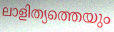
ലാളിത്യത്തെയും